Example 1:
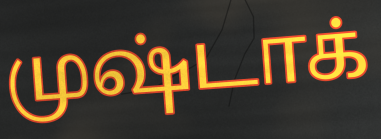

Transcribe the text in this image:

முஷ்டாக்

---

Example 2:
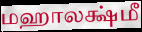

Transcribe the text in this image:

மஹாலக்ஷ்மீ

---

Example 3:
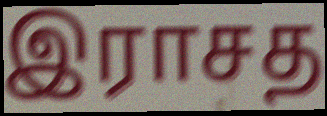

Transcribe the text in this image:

இராசத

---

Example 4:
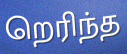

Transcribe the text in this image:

றெரிந்த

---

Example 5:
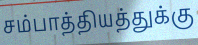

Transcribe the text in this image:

சம்பாத்தியத்துக்கு